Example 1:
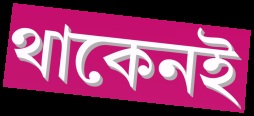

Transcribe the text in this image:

থাকেনই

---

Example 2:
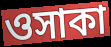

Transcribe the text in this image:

ওসাকা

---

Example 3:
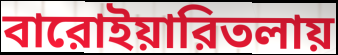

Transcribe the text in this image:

বারোইয়ারিতলায়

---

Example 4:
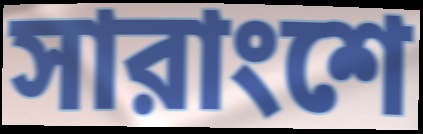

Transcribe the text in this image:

সারাংশে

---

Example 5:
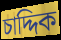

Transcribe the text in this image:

চাদ্দিক